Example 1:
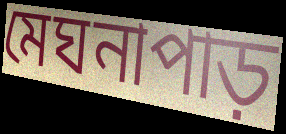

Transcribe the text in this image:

মেঘনাপাড়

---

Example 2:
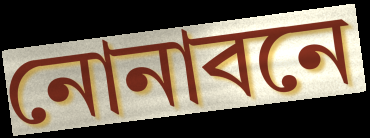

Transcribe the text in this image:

নোনাবনে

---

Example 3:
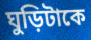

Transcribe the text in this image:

ঘুড়িটাকে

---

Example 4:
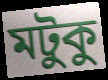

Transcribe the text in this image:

মটুকু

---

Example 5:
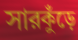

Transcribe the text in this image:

সারকুঁড়ে